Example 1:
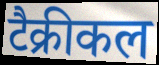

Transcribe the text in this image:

टैक्रीकल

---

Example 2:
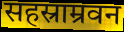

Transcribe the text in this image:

सहस्राम्रवन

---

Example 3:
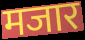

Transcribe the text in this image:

मजार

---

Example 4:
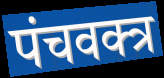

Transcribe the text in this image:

पंचवक्त्र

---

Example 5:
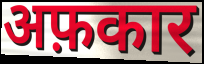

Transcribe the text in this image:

अफ़कार